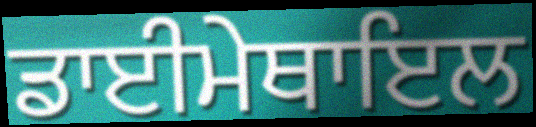
ਡਾਈਮੇਥਾਇਲ